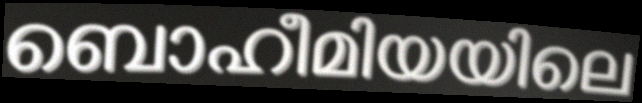
ബൊഹീമിയയിലെ